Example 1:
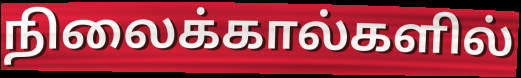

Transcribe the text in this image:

நிலைக்கால்களில்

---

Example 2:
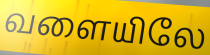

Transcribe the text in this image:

வளையிலே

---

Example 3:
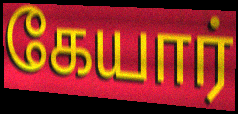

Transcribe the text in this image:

கேயார்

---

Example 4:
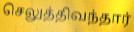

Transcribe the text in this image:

செலுத்திவந்தார்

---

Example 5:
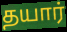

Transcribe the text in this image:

தயார்